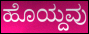
ಹೊಯ್ದವು